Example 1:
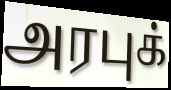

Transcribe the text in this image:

அரபுக்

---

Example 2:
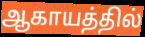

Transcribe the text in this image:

ஆகாயத்தில்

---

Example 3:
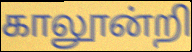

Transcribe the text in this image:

காலூன்றி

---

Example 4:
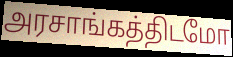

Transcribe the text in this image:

அரசாங்கத்திடமோ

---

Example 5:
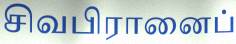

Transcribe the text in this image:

சிவபிரானைப்